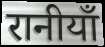
रानीयाँ